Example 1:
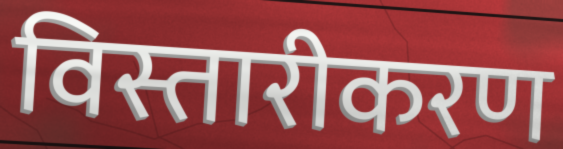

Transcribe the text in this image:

विस्तारीकरण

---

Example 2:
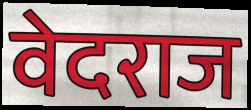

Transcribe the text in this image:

वेदराज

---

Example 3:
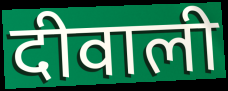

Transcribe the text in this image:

दीवाली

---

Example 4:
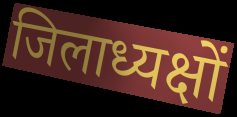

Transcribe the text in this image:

जिलाध्यक्षों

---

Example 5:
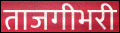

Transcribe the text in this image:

ताजगीभरी